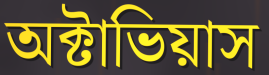
অক্টাভিয়াস